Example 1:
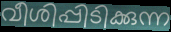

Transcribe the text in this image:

വീശിപ്പിടിക്കുന്ന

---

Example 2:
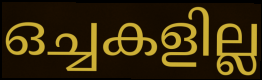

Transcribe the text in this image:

ഒച്ചകളില്ല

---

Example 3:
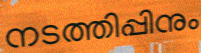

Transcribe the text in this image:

നടത്തിപ്പിനും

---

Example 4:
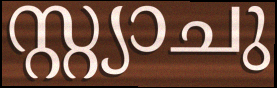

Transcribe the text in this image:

സ്റ്റ്യാചു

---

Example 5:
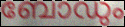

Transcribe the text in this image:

ബോഡും